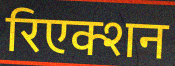
रिएक्शन